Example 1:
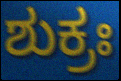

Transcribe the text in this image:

ಶುಕ್ರಃ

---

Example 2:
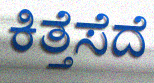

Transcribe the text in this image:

ಕಿತ್ತೆಸೆದೆ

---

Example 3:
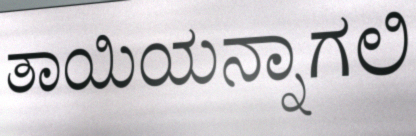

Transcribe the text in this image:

ತಾಯಿಯನ್ನಾಗಲಿ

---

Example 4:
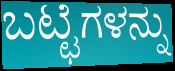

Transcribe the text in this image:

ಬಟ್ಟೆಗಳನ್ನು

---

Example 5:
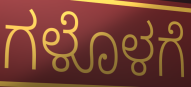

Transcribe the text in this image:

ಗಳೊಳಗೆ